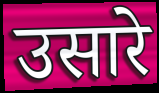
उसारे